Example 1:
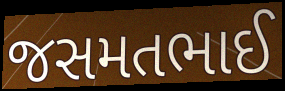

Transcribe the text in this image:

જસમતભાઈ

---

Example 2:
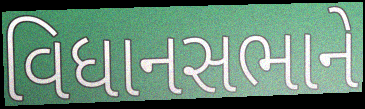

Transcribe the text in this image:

વિધાનસભાને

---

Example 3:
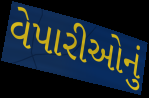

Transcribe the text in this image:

વેપારીઓનું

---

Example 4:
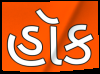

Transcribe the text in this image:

હૉક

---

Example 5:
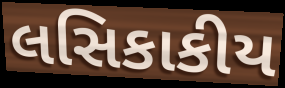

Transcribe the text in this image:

લસિકાકીય